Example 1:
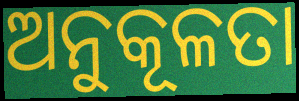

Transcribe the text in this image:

ଅନୁକୂଳତା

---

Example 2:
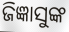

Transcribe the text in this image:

ଜିଜ୍ଞାସୁଙ୍କ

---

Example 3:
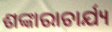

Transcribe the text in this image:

ଶଙ୍କାରାଚାର୍ଯ୍ୟ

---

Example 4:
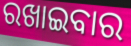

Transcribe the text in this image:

ରଖାଇବାର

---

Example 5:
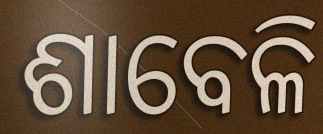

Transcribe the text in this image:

ଶାବେଳି